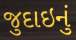
જુદાઇનું